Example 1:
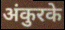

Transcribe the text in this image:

अंकुरके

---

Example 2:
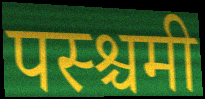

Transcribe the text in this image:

पस्श्चमी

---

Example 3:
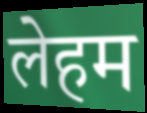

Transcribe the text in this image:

लेहम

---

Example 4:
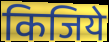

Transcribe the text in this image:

किजिये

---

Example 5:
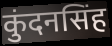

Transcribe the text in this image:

कुंदनसिंह